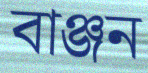
বাঞ্জন